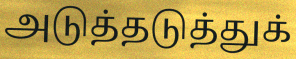
அடுத்தடுத்துக்